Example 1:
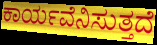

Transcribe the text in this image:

ಕಾರ್ಯವೆನಿಸುತ್ತದೆ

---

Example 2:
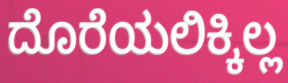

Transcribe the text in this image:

ದೊರೆಯಲಿಕ್ಕಿಲ್ಲ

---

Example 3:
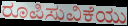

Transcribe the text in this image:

ರೂಪಿಸುವಿಕೆಯು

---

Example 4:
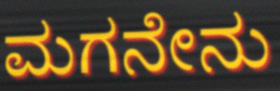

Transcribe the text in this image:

ಮಗನೇನು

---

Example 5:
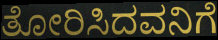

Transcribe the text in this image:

ತೋರಿಸಿದವನಿಗೆ